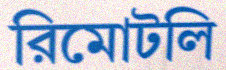
রিমোটলি